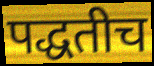
पद्धतीच